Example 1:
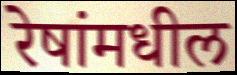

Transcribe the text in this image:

रेषांमधील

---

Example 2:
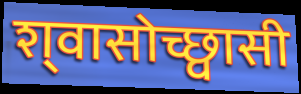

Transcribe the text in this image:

श्वासोच्छ्वासी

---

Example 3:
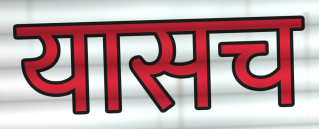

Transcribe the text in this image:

यासच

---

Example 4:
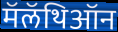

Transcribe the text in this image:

मॅलॅथिऑन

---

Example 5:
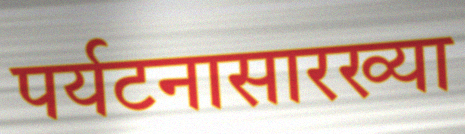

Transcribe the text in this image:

पर्यटनासारख्या